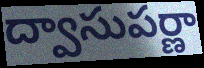
ద్వాసుపర్ణా